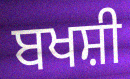
ਬਖਸ਼ੀ